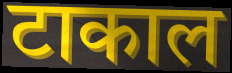
टाकाल